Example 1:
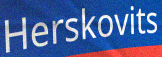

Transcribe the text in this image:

Herskovits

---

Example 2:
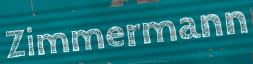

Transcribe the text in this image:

Zimmermann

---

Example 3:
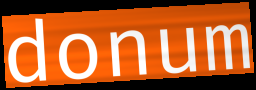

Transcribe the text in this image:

donum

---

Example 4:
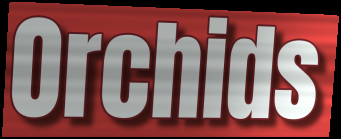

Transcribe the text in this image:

Orchids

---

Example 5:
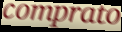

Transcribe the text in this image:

comprato